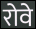
रोवे